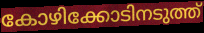
കോഴിക്കോടിനടുത്ത്